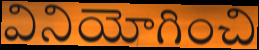
వినియోగించి